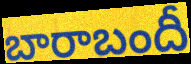
బారాబందీ